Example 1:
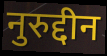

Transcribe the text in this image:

नुरुद्दीन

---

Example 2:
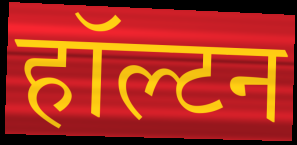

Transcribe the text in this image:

हॉल्टन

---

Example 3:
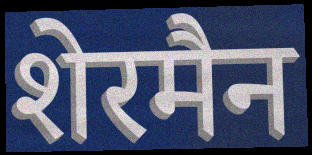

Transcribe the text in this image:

शेरमैन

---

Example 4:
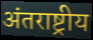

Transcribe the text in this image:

अंतराष्ट्रीय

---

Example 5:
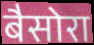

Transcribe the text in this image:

बैसोरा